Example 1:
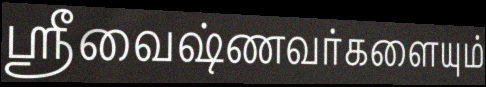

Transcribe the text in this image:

ஸ்ரீவைஷ்ணவர்களையும்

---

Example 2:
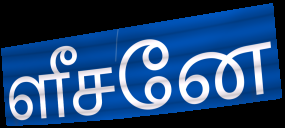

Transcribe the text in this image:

ளீசனே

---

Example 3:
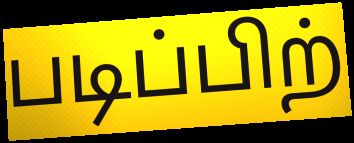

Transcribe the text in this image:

படிப்பிற்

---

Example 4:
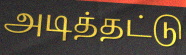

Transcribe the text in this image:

அடித்தட்டு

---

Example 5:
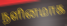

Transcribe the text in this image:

நளினமாக